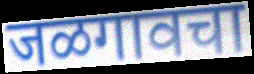
जळगावचा